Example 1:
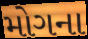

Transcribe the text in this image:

મોગના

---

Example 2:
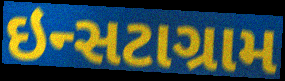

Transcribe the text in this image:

ઇન્સટાગ્રામ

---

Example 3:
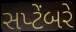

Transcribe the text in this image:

સપ્ટેંબરે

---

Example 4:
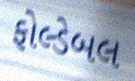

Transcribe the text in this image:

ફોલ્ડેબલ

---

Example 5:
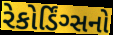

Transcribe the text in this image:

રેકોર્ડિંગ્સનો